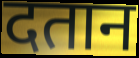
दतान